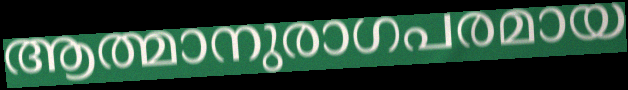
ആത്മാനുരാഗപരമായ